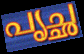
പൃച്ഛ